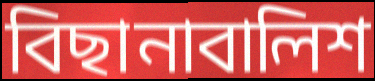
বিছানাবালিশ